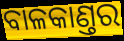
ବାଳକାଣ୍ତର